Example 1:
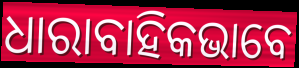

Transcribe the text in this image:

ଧାରାବାହିକଭାବେ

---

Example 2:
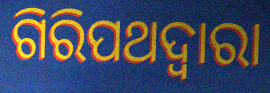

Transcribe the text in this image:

ଗିରିପଥଦ୍ୱାରା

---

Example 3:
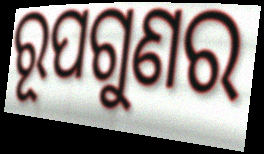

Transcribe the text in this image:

ରୂପଗୁଣର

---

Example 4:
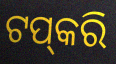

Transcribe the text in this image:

ଟପ୍‌କରି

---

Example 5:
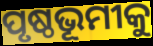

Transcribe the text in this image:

ପୃଷ୍ଠଭୂମୀକୁ